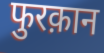
फुरक़ान